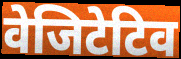
वेजिटेटिव